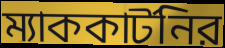
ম্যাককার্টনির